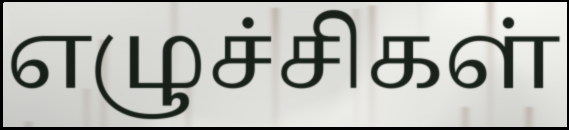
எழுச்சிகள்